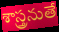
శాస్త్రనుతే